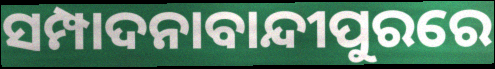
ସମ୍ପାଦନାବାନ୍ଦୀପୁରରେ